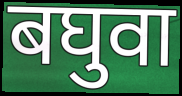
बघुवा